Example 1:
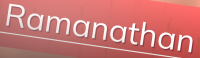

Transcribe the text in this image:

Ramanathan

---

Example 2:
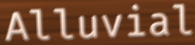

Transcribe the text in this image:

Alluvial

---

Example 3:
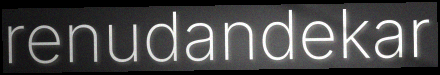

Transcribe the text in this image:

renudandekar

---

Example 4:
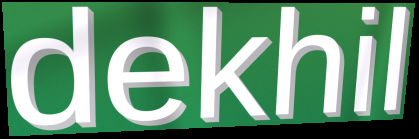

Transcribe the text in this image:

dekhil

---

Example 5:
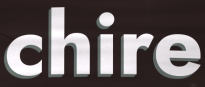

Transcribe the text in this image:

chire